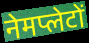
नेमप्लेटों